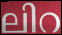
ലിറ